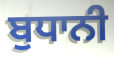
ਬੁਧਾਨੀ